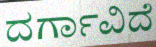
ದರ್ಗಾವಿದೆ